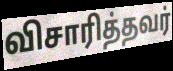
விசாரித்தவர்